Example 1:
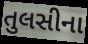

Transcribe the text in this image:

તુલસીના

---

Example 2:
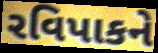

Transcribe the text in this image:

રવિપાકને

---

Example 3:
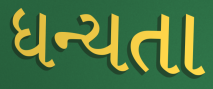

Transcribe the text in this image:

ધન્યતા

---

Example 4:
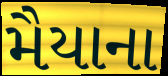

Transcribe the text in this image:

મૈયાના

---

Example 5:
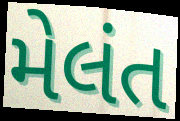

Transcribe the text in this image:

મેલંત